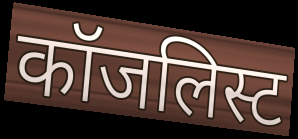
कॉजलिस्ट